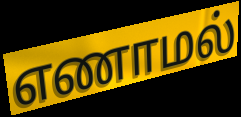
எணாமல்